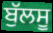
ਬੁੱਲਸੂ